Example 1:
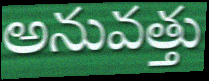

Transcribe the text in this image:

అనువత్తు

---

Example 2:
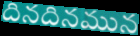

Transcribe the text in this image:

దినదినమున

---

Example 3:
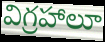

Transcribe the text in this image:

విగ్రహాలూ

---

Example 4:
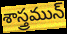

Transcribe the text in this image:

శాస్త్రమున్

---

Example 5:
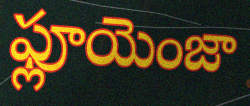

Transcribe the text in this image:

ఫ్లూయెంజా